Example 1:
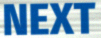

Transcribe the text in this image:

NEXT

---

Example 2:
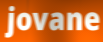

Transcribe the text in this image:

jovane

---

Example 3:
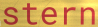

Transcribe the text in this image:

stern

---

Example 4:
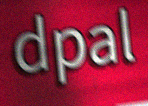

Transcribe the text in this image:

dpal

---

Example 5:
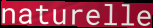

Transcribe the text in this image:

naturelle